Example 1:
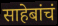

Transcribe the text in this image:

साहेबांचं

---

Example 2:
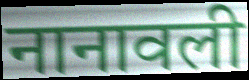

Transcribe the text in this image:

नानावली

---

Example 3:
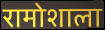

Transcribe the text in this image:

रामोशाला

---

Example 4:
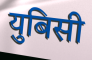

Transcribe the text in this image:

युबिसी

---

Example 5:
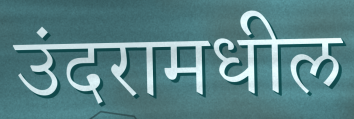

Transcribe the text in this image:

उंदरामधील